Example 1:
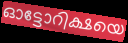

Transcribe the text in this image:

ഓട്ടോറിക്ഷയെ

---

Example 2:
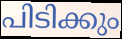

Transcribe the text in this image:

പിടിക്കും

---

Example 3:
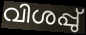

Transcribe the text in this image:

വിശപ്പു്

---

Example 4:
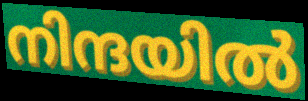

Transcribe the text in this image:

നിന്ദയിൽ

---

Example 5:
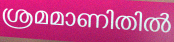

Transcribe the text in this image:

ശ്രമമാണിതിൽ